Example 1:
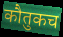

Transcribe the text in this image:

कौतुकच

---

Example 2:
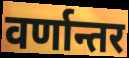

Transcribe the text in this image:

वर्णान्तर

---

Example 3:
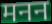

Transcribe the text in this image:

मनन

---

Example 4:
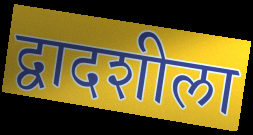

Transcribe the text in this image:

द्वादशीला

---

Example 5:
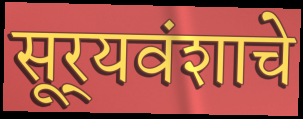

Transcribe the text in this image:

सूर्यवंशाचे